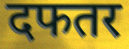
दफतर